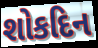
શોકદિન